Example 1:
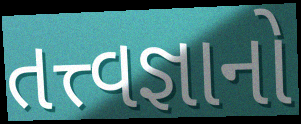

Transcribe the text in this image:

તત્ત્વજ્ઞાનો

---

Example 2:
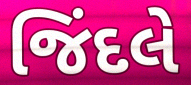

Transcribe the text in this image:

જિંદલે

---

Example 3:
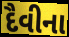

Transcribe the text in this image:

દૈવીના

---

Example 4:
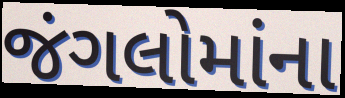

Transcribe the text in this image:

જંગલોમાંના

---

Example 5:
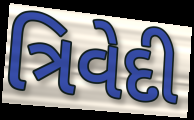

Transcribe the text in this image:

ત્રિવેદી